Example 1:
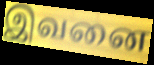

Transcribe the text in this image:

இவனை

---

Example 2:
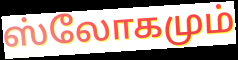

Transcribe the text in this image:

ஸ்லோகமும்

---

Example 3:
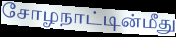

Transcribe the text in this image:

சோழநாட்டின்மீது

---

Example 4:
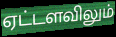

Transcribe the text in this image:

ஏட்டளவிலும்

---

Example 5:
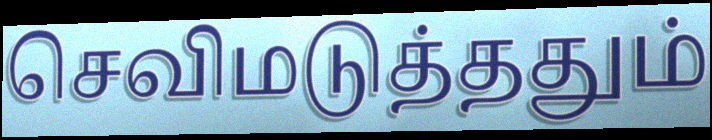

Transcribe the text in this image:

செவிமடுத்ததும்